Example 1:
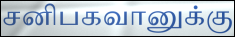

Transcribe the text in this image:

சனிபகவானுக்கு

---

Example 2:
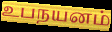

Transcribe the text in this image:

உபநயனம்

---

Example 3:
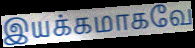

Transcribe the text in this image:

இயக்கமாகவே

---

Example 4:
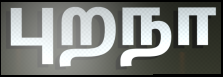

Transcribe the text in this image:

புறநா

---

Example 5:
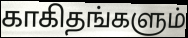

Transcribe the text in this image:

காகிதங்களும்